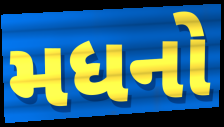
મધનો